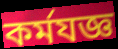
কর্মযজ্ঞ